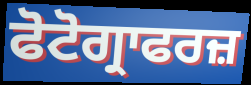
ਫੋਟੋਗ੍ਰਾਫਰਜ਼